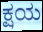
ಕ್ಷಯ